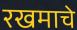
रखमाचे